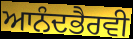
ਆਨੰਦਭੈਰਵੀ